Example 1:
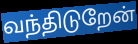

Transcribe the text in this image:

வந்திடுறேன்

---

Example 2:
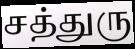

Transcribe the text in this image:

சத்துரு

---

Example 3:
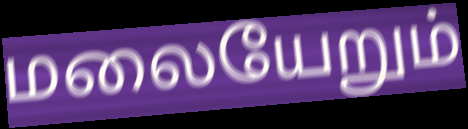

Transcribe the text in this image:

மலையேறும்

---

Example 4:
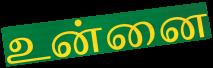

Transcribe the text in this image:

உன்னை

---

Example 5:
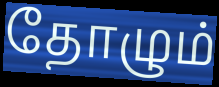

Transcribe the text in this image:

தோழும்